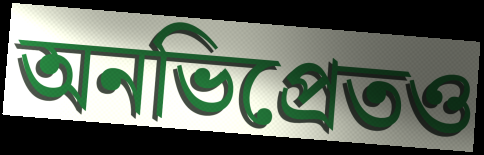
অনভিপ্রেতও